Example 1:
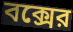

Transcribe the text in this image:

বক্সের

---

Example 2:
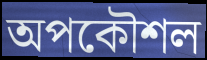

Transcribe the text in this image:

অপকৌশল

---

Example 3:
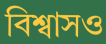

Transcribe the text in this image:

বিশ্বাসও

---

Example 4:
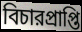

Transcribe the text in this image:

বিচারপ্রাপ্তি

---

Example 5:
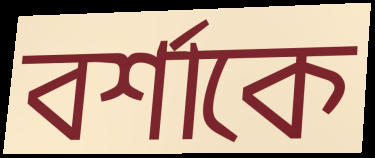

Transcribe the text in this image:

বর্শাকে